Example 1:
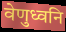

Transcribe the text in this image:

वेणुध्वनि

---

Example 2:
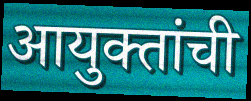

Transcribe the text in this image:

आयुक्तांची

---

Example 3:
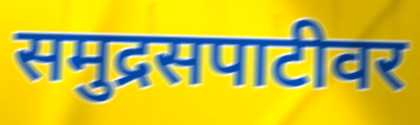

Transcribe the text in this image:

समुद्रसपाटीवर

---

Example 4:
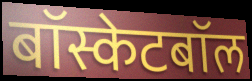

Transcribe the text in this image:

बॉस्केटबॉल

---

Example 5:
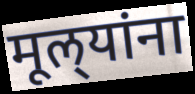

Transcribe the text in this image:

मूल्यांना